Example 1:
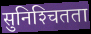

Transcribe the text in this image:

सुनिश्चितता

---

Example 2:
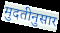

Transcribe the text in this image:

मुदतीनुसार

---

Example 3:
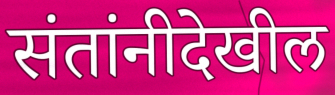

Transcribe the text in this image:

संतांनीदेखील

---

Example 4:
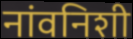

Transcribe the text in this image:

नांवनिशी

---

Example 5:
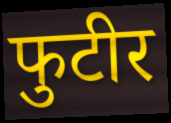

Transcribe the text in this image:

फुटीर